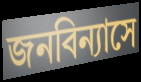
জনবিন্যাসে